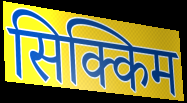
सिक्किम